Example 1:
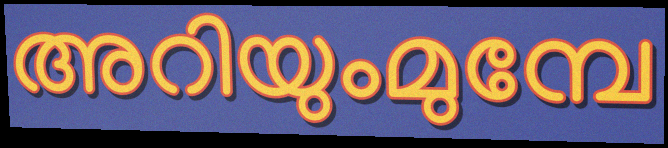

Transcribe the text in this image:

അറിയുംമുമ്പേ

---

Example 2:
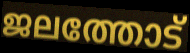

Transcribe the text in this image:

ജലത്തോട്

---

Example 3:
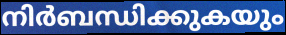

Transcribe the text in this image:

നിർബന്ധിക്കുകയും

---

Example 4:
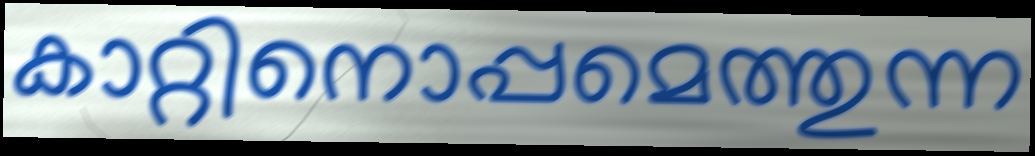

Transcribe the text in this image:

കാറ്റിനൊപ്പമെത്തുന്ന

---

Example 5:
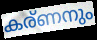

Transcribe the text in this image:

കര്ണനും